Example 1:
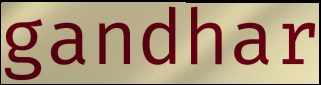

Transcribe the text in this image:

gandhar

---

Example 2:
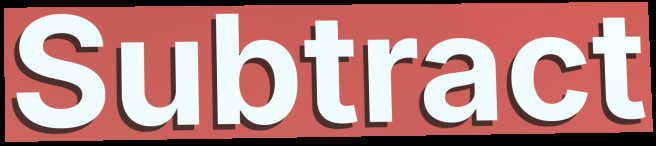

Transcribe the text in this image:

Subtract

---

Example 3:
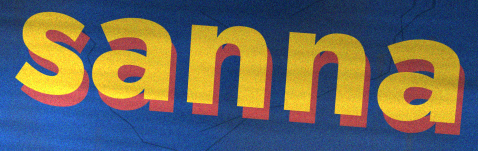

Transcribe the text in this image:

sanna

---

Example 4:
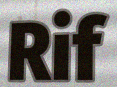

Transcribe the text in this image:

Rif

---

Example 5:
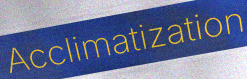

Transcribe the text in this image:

Acclimatization